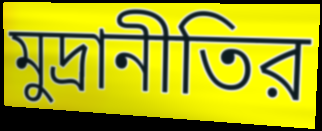
মুদ্রানীতির